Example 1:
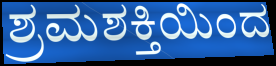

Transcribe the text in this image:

ಶ್ರಮಶಕ್ತಿಯಿಂದ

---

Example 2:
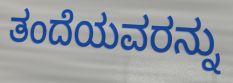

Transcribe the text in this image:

ತಂದೆಯವರನ್ನು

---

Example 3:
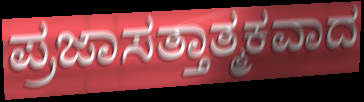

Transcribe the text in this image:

ಪ್ರಜಾಸತ್ತಾತ್ಮಕವಾದ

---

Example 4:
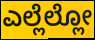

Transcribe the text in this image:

ಎಲ್ಲೆಲ್ಲೋ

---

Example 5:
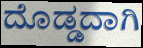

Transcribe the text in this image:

ದೊಡ್ಡದಾಗಿ